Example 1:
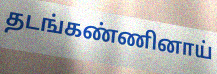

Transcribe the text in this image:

தடங்கண்ணினாய்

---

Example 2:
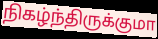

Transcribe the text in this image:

நிகழ்ந்திருக்குமா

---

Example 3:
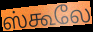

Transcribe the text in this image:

ஸ்கூலே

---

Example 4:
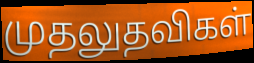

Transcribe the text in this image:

முதலுதவிகள்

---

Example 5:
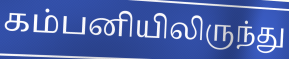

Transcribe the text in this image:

கம்பனியிலிருந்து